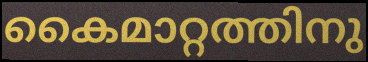
കൈമാറ്റത്തിനു